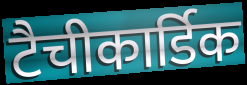
टैचीकार्डिक